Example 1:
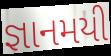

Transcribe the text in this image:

જ્ઞાનમયી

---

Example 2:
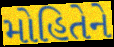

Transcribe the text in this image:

મોહિતેને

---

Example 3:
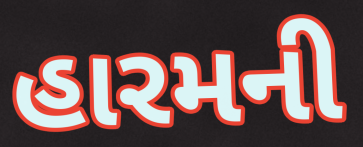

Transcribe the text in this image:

હારમની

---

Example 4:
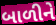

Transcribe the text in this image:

બાળીને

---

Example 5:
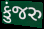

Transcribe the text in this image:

કુંજરુ